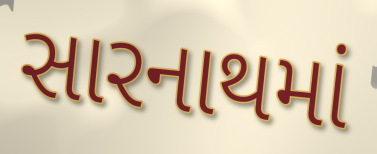
સારનાથમાં